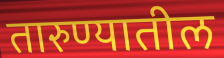
तारुण्यातील